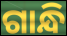
ଗାନ୍ଧି